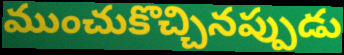
ముంచుకొచ్చినప్పుడు